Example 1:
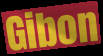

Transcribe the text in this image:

Gibon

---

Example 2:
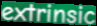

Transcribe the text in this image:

extrinsic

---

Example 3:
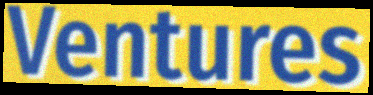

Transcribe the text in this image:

Ventures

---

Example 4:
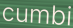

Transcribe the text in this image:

cumbi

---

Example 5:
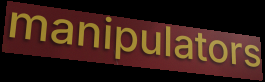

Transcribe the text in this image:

manipulators